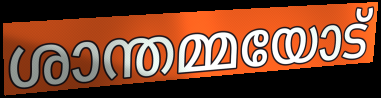
ശാന്തമ്മയോട്